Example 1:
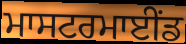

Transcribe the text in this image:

ਮਾਸਟਰਮਾਈਂਡ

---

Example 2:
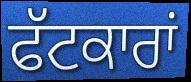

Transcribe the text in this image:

ਫੱਟਕਾਰਾਂ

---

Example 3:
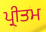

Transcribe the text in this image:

ਪ੍ਰੀਤਮ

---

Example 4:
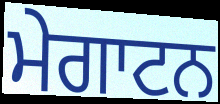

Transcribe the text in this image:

ਮੇਗਾਟਨ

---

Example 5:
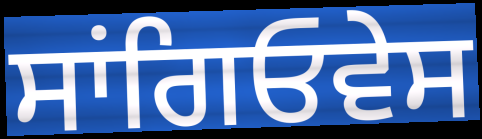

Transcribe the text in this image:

ਸਾਂਗਿਓਵੇਸ